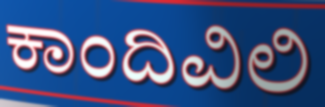
ಕಾಂದಿವಿಲಿ